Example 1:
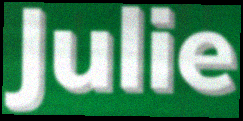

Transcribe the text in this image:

Julie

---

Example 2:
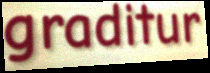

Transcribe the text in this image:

graditur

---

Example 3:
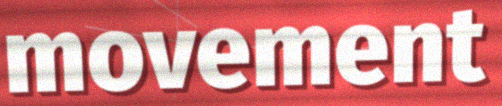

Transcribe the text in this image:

movement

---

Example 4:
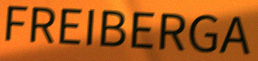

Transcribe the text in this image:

FREIBERGA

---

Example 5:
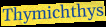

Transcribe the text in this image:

Thymichthys